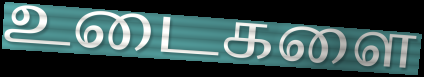
உடைகளை